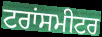
ਟਰਾਂਸਮੀਟਰ